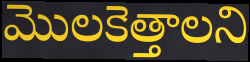
మొలకెత్తాలని